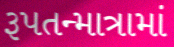
રૂપતન્માત્રામાં